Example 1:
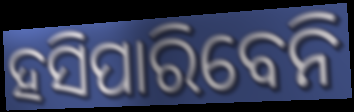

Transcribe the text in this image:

ହସିପାରିବେନି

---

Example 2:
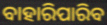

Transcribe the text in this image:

ବାହାରିପାରିବ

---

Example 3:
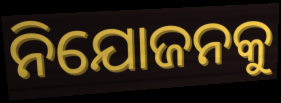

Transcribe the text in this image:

ନିଯୋଜନକୁ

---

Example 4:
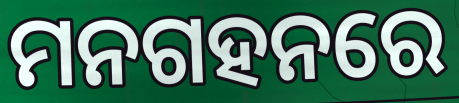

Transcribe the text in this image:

ମନଗହନରେ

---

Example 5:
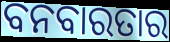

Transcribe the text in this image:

ବନବାରତାର